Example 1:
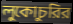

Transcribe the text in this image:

লুকোচুরির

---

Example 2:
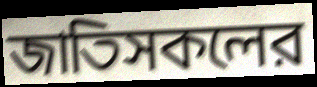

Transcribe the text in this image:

জাতিসকলের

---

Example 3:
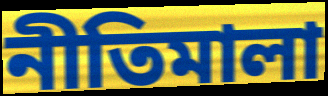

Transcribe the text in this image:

নীতিমালা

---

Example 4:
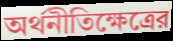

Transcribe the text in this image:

অর্থনীতিক্ষেত্রের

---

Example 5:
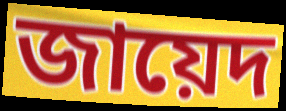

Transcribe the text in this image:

জায়েদ